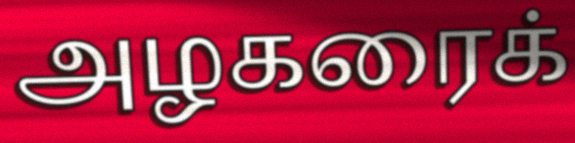
அழகரைக்